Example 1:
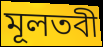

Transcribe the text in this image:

মূলতবী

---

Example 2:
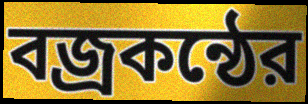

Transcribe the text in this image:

বজ্রকন্ঠের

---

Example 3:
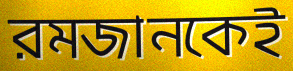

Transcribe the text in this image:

রমজানকেই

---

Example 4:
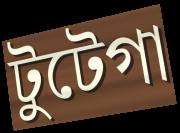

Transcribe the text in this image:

টুটেগা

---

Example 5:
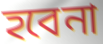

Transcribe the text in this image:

হবেনা